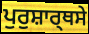
ਪੁਰੁਸ਼ਾਰ੍ਥਸੇ